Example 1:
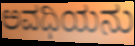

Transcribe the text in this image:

ಅವಧಿಯನು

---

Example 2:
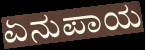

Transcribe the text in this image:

ಏನುಪಾಯ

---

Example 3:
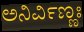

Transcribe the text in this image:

ಅನಿರ್ವಿಣ್ಣಃ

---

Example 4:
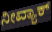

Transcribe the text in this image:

ನೀವ್ಯಾಕ್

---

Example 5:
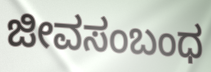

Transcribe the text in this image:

ಜೀವಸಂಬಂಧ